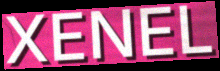
XENEL